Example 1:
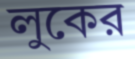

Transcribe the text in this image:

লুকের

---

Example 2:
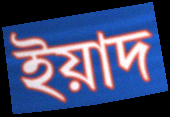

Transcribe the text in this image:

ইয়াদ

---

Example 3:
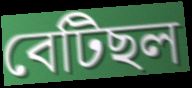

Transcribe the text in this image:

বেটিছল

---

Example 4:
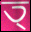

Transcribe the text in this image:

ত্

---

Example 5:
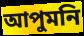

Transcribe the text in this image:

আপুমনি